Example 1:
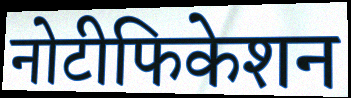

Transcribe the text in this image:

नोटीफिकेशन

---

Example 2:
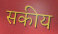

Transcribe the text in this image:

सकीय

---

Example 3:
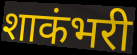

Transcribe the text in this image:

शाकंभरी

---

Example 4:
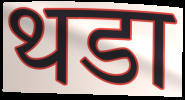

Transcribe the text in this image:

थडा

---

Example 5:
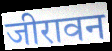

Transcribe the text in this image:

जीरावन